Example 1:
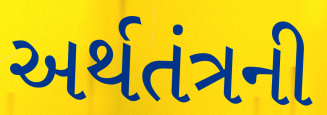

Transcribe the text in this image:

અર્થતંત્રની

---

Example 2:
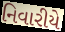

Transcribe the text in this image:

નિવારીયે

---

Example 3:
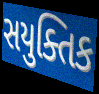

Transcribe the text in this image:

સયુક્તિક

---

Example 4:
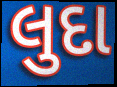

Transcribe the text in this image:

લુદા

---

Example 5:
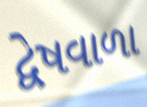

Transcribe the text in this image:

દ્વેષવાળા